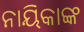
ନାୟିକାଙ୍କ